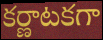
కర్ణాటకగా